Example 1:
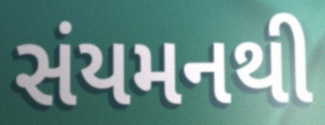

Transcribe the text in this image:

સંયમનથી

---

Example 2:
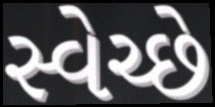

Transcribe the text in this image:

સ્વેચ્છે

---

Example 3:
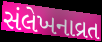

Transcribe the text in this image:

સંલેખનાવ્રત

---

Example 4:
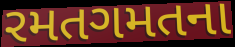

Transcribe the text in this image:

રમતગમતના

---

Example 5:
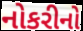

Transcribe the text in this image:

નોકરીનો